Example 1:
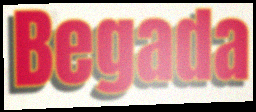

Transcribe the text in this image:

Begada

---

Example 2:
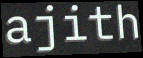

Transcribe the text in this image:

ajith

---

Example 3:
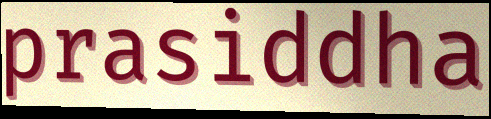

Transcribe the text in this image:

prasiddha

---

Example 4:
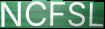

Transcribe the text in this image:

NCFSL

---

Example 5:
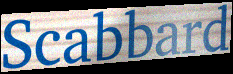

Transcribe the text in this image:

Scabbard